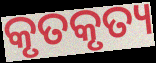
କୃତକୃତ୍ୟ